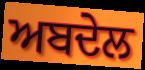
ਅਬਦੇਲ